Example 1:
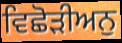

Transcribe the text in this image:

ਵਿਛੋੜੀਅਨੁ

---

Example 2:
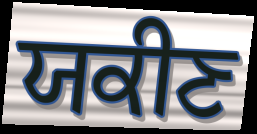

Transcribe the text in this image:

ਯਕੀਣ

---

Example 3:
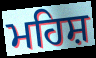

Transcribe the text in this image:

ਮਹਿਸ਼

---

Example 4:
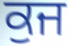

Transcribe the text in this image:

ਕੁਜ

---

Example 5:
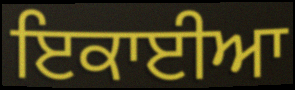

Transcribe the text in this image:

ਇਕਾਈਆ